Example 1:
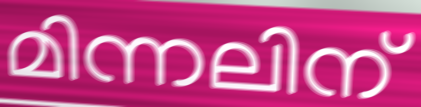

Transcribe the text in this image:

മിന്നലിന്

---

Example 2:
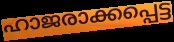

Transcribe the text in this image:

ഹാജരാക്കപ്പെട്ട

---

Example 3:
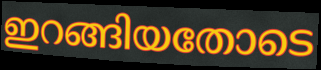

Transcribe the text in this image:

ഇറങ്ങിയതോടെ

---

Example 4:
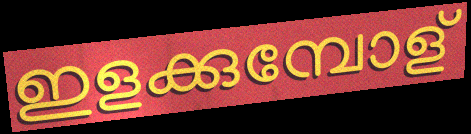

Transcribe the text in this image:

ഇളക്കുമ്പോള്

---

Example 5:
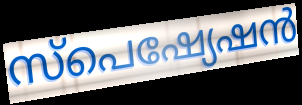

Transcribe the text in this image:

സ്പെഷ്യേഷൻ